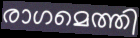
രാഗമെത്തി